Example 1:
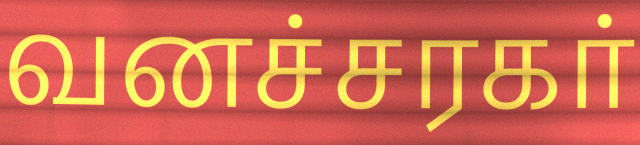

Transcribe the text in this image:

வனச்சரகர்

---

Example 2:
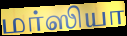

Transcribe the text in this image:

மர்ஸியா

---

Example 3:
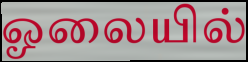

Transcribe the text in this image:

ஓலையில்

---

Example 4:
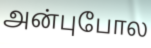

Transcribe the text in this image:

அன்புபோல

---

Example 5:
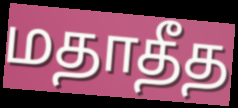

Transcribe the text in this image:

மதாதீத